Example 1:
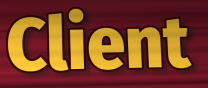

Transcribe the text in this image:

Client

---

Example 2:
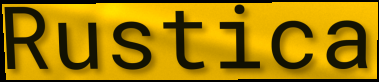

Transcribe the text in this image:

Rustica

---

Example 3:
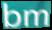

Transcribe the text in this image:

bm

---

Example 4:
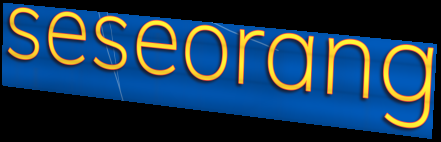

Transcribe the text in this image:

seseorang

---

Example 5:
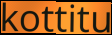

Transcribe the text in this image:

kottitu